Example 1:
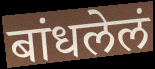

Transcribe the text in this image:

बांधलेलं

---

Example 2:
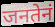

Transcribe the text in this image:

जनतेनं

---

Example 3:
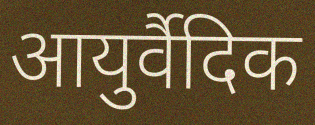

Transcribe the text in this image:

आयुर्वैदिक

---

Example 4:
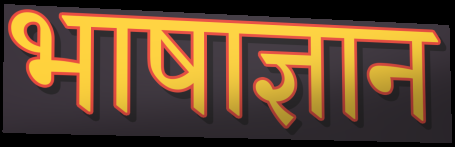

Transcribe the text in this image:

भाषाज्ञान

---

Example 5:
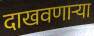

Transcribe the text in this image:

दाखवणाऱ्या